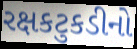
રક્ષકટુકડીનો